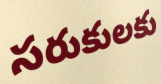
సరుకులకు